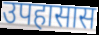
उपहासास